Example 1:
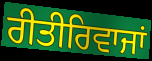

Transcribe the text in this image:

ਰੀਤੀਰਿਵਾਜਾਂ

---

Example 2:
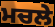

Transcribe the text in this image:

ਮਚਲੇ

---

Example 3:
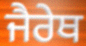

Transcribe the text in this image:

ਜੈਰੇਥ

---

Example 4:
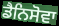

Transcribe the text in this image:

ਡੈਨਿਸੋਵਾ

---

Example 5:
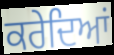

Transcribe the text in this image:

ਕਰੇਦਿਆਂ